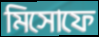
মিসোফে